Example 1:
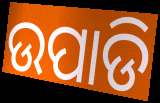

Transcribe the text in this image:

ଉପାଡି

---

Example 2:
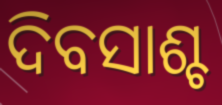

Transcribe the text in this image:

ଦିବସାଶ୍ଚ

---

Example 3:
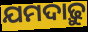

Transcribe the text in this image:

ଯମଦାଢ଼ୁ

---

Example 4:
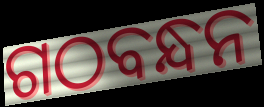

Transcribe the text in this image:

ଗଠବନ୍ଧନ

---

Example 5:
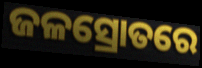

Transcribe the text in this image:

ଜଳସ୍ରୋତରେ